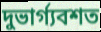
দুভার্গ্যবশত